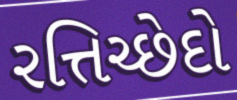
રત્તિચ્છેદો